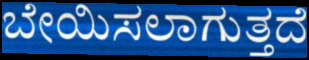
ಬೇಯಿಸಲಾಗುತ್ತದೆ